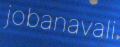
jobanavali